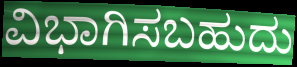
ವಿಭಾಗಿಸಬಹುದು